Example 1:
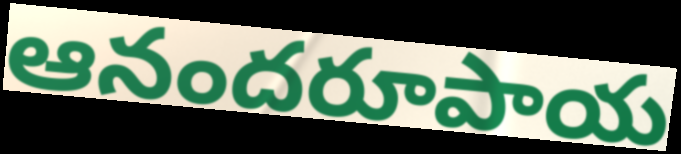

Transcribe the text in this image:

ఆనందరూపాయ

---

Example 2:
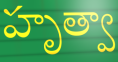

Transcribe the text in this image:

హృత్వా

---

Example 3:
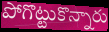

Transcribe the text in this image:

పోగొట్టుకొన్నారు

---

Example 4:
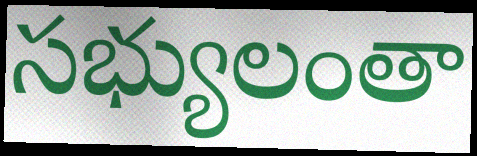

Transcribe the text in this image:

సభ్యులంతా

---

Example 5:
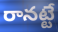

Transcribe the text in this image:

రానట్టే